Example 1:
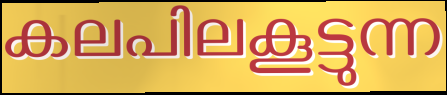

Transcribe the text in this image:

കലപിലകൂട്ടുന്ന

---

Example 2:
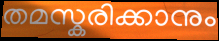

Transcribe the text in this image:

തമസ്കരിക്കാനും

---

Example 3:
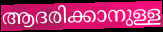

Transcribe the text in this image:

ആദരിക്കാനുള്ള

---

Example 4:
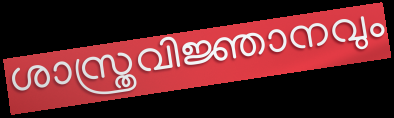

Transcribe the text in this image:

ശാസ്ത്രവിജ്ഞാനവും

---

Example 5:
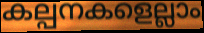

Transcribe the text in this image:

കല്പനകളെല്ലാം